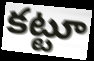
కట్టూ